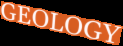
GEOLOGY